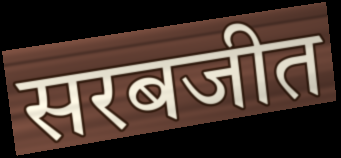
सरबजीत